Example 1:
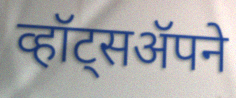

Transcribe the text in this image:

व्हॉट्सॲपने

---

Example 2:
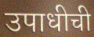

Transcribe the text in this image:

उपाधीची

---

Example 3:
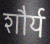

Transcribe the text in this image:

शौर्य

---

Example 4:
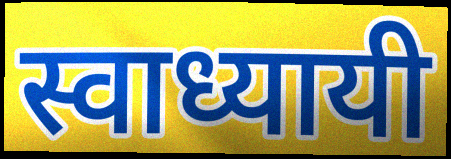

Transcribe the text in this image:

स्वाध्यायी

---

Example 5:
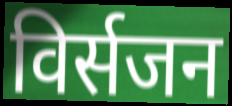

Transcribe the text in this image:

विर्सजन